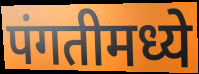
पंगतीमध्ये